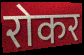
रोकर